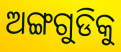
ଅଙ୍ଗଗୁଡିକୁ